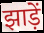
झाड़ें